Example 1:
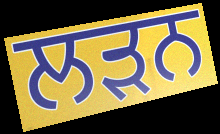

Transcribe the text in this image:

ਲਡ਼ਨ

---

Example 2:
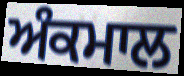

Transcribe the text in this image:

ਅੰਕਮਾਲ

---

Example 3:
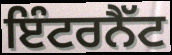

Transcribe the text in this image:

ਇੰਟਰਨੈੱਟ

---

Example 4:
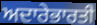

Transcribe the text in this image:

ਅਦਾਰੇਭਾਰਤੀ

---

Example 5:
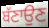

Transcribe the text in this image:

ਬੱਣਾਉਣ